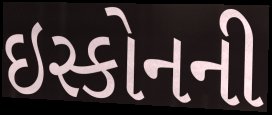
ઇસ્કોનની